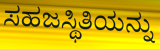
ಸಹಜಸ್ಥಿತಿಯನ್ನು